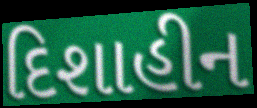
દિશાહીન